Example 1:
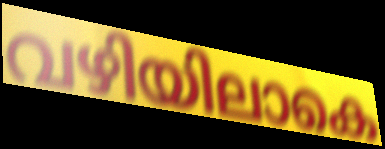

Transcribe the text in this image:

വഴിയിലാകെ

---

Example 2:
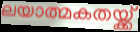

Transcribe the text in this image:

ലയാത്മകതയ്ക്ക്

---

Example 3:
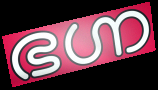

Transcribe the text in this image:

ഭഗ്ന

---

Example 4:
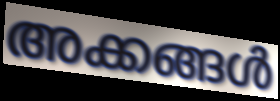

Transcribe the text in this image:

അക്കങ്ങൾ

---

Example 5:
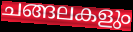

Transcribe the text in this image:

ചങ്ങലകളും